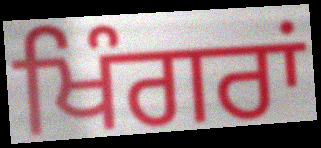
ਖਿੰਗਰਾਂ